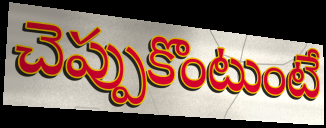
చెప్పుకొంటుంటే